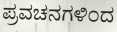
ಪ್ರವಚನಗಳಿಂದ